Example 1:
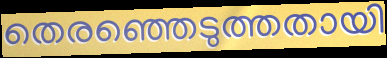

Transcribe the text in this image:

തെരഞ്ഞെടുത്തതായി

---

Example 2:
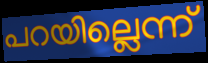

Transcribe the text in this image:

പറയില്ലെന്ന്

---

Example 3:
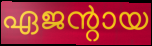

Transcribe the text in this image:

ഏജന്റായ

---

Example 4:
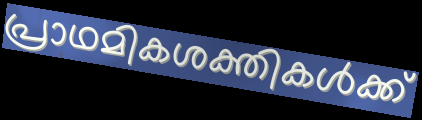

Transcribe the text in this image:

പ്രാഥമികശക്തികൾക്ക്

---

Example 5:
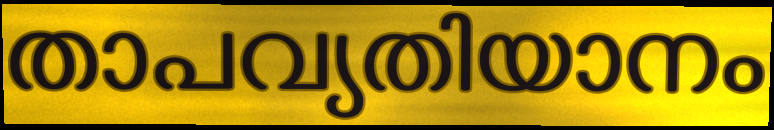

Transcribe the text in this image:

താപവ്യതിയാനം